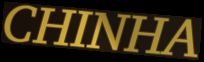
CHINHA